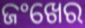
ଜଂଖେର